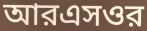
আরএসওর